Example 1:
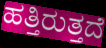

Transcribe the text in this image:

ಹತ್ತಿರುತ್ತದೆ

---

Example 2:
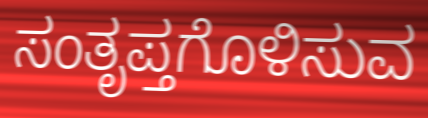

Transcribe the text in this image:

ಸಂತೃಪ್ತಗೊಳಿಸುವ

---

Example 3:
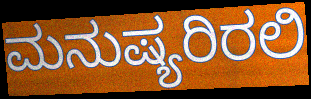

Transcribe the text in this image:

ಮನುಷ್ಯರಿರಲಿ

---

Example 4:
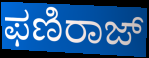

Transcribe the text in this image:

ಫಣಿರಾಜ್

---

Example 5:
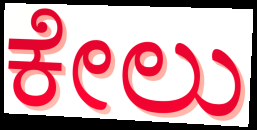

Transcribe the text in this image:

ಕೇಲು